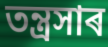
তন্ত্ৰসাৰ